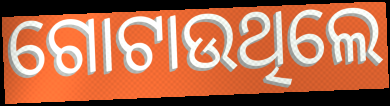
ଗୋଟାଉଥିଲେ